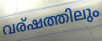
വര്ഷത്തിലും